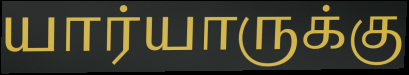
யார்யாருக்கு